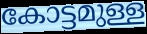
കോട്ടമുള്ള